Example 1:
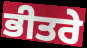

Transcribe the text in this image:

ਭੀਤਰੇ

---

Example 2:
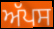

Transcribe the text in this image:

ਅੱਪਸ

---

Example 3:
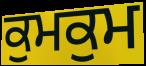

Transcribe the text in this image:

ਕੁਮਕੁਮ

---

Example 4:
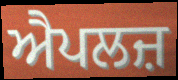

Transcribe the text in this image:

ਐਪਲਜ਼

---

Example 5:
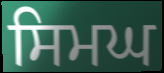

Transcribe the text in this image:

ਸਿਮਘ